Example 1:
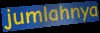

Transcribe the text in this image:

jumlahnya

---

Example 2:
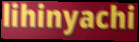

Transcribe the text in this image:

lihinyachi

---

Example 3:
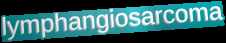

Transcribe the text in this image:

lymphangiosarcoma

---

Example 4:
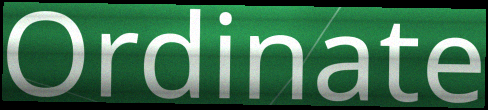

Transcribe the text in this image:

Ordinate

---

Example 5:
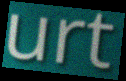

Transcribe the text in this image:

urt